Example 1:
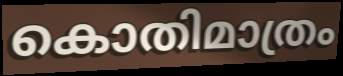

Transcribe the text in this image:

കൊതിമാത്രം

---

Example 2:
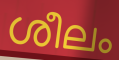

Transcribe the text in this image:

ശീലം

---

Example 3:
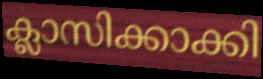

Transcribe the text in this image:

ക്ലാസിക്കാക്കി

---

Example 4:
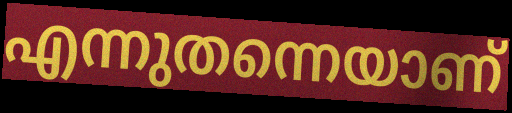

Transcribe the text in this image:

എന്നുതന്നെയാണ്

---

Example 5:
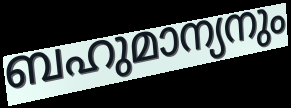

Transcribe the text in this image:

ബഹുമാന്യനും